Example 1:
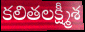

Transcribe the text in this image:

కలితలక్ష్మీశ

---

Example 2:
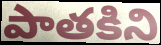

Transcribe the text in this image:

పాతకిని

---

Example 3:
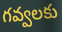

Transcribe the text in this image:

గవ్వలకు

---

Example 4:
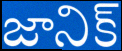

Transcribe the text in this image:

జానిక్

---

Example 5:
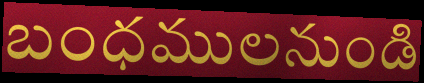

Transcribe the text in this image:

బంధములనుండి